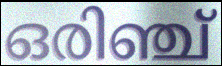
ഒരിഞ്ച്